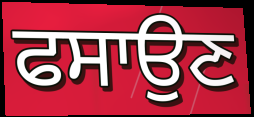
ਫਸਾਉਣ